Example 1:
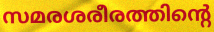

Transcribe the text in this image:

സമരശരീരത്തിന്റെ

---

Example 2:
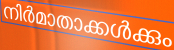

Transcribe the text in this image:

നിർമാതാക്കൾക്കും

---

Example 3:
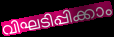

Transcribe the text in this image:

വിഘടിപ്പിക്കാം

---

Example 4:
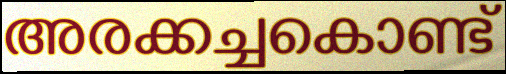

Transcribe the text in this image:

അരക്കച്ചകൊണ്ട്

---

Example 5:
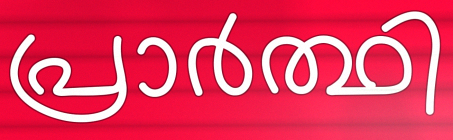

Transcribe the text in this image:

പ്രാർത്ഥി